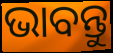
ଭାବନ୍ତୁ